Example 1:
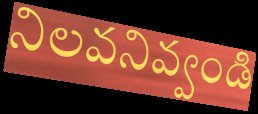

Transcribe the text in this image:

నిలవనివ్వండి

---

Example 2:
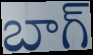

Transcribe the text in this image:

బాగ్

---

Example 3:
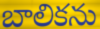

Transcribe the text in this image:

బాలికను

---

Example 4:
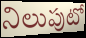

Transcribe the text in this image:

నిలుపుటో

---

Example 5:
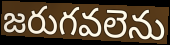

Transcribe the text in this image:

జరుగవలెను